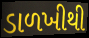
ડાળખીથી